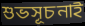
শুভসূচনাই